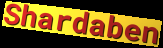
Shardaben